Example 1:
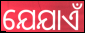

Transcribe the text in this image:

ଯେଯାଏଁ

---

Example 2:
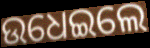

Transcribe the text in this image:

ଉଧେଇଲେ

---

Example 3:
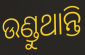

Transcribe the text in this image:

ଉଣ୍ଡୁଥାନ୍ତି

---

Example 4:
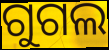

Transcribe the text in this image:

ଗୁଗଲ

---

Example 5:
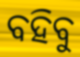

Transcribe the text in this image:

ବହିବୁ